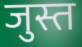
जुस्त